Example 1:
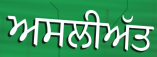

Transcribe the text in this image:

ਅਸਲੀਅੱਤ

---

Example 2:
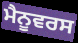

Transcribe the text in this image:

ਮੈਨੂਵਰਸ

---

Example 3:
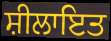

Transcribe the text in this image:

ਸ਼ੀਲਾਇਤ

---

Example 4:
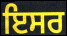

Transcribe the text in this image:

ਇਸਰ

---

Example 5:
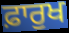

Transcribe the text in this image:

ਫ਼ਾਰੁਖ